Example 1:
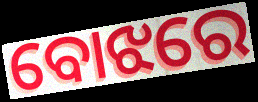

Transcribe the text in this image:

ବୋଝରେ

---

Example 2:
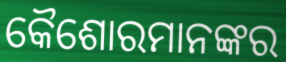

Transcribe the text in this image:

କୈଶୋରମାନଙ୍କର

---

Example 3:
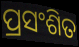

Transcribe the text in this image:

ପ୍ରସଂଶିତ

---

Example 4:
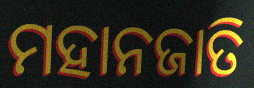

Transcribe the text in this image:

ମହାନଜାତି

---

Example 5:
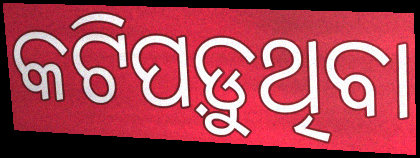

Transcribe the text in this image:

କଟିପଡ଼ୁଥିବା